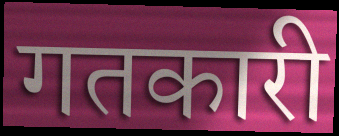
गतकारी